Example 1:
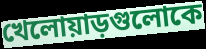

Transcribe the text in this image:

খেলোয়াড়গুলোকে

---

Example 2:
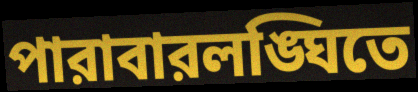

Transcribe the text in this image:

পারাবারলঙ্ঘিতে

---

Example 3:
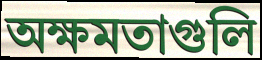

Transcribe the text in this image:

অক্ষমতাগুলি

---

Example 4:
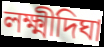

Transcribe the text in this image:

লক্ষ্মীদিঘা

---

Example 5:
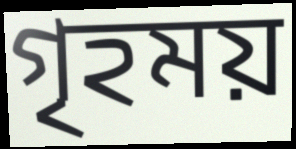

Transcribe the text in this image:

গৃহময়